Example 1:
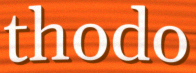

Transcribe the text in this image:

thodo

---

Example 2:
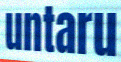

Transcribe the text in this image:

untaru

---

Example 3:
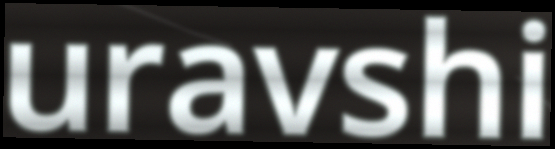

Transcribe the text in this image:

uravshi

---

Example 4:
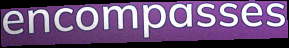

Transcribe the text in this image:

encompasses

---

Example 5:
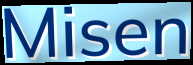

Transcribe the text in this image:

Misen